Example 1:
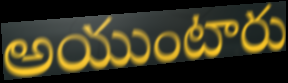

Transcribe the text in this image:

అయుంటారు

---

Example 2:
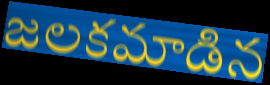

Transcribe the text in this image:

జలకమాడిన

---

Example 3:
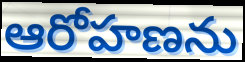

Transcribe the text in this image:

ఆరోహణను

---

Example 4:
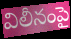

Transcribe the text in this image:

విలీనంపై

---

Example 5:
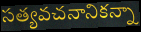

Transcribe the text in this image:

సత్యవచనానికన్నా